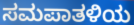
ಸಮಪಾತಳಿಯ